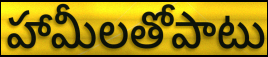
హామీలతోపాటు